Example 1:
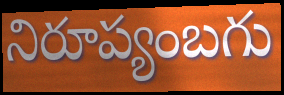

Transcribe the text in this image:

నిరూప్యంబగు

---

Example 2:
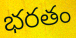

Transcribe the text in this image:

భరతం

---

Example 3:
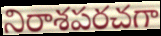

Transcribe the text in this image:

నిరాశపరచగా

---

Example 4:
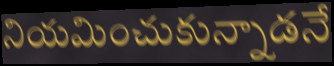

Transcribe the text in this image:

నియమించుకున్నాడనే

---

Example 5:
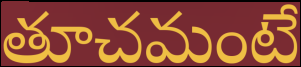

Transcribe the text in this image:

తూచమంటే